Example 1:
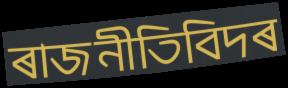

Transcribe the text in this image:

ৰাজনীতিবিদৰ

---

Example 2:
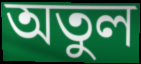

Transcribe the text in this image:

অতুল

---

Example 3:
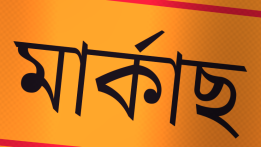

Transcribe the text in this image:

মাৰ্কাছ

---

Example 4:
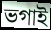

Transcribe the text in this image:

ভগাই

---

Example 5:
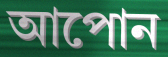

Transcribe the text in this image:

আপোন